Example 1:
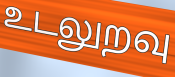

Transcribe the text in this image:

உடலுறவு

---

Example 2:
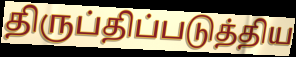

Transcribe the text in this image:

திருப்திப்படுத்திய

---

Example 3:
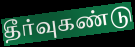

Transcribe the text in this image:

தீர்வுகண்டு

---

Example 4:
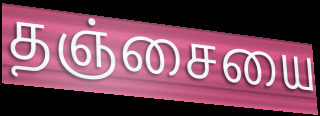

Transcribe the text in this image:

தஞ்சையை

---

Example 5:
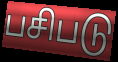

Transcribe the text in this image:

பசிபடு